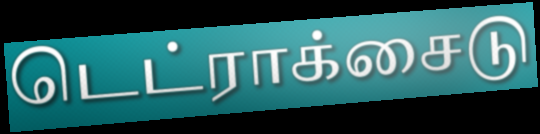
டெட்ராக்சைடு